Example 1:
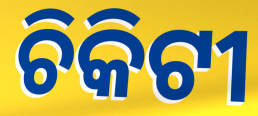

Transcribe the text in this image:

ଚିକିଟୀ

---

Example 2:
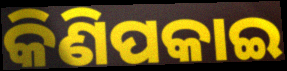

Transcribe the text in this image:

କିଣିପକାଇ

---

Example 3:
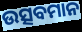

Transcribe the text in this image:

ଉତ୍ସବମାନ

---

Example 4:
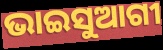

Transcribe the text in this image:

ଭାଇସୁଆଗୀ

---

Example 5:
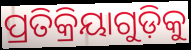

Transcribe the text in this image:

ପ୍ରତିକ୍ରିୟାଗୁଡ଼ିକୁ